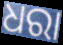
ଧରା